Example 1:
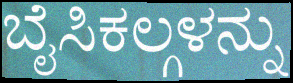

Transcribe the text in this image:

ಬೈಸಿಕಲ್ಗಳನ್ನು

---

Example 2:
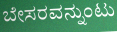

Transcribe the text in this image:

ಬೇಸರವನ್ನುಂಟು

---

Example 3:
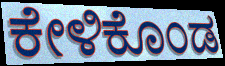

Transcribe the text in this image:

ಕೇಳಿಕೊಂಡ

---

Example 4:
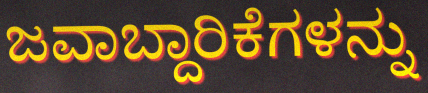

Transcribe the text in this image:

ಜವಾಬ್ದಾರಿಕೆಗಳನ್ನು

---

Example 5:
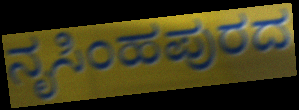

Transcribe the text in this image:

ನೃಸಿಂಹಪುರದ